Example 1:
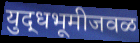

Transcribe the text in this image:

युद्धभूमीजवळ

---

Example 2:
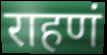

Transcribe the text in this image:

राहणं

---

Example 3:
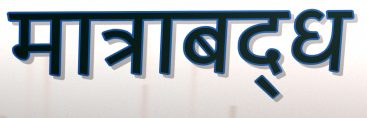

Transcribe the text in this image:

मात्राबद्ध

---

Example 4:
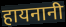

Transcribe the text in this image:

हायनानी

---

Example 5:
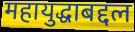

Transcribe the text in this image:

महायुद्धाबद्दल